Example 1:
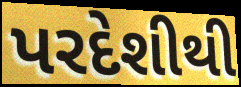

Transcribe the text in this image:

પરદેશીથી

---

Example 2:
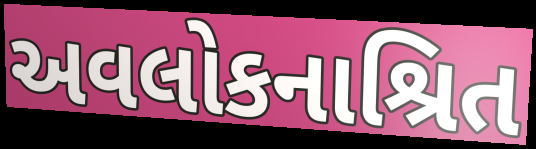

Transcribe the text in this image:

અવલોકનાશ્રિત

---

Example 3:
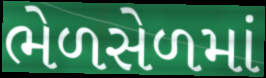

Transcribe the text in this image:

ભેળસેળમાં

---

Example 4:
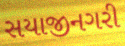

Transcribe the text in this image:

સયાજીનગરી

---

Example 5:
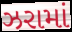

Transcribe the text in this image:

ઝરામાં